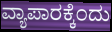
ವ್ಯಾಪಾರಕ್ಕೆಂದು